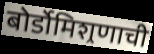
बोर्डोमिश्रणाची